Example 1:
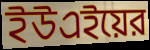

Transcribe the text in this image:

ইউএইয়ের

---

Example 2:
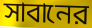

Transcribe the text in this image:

সাবানের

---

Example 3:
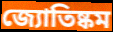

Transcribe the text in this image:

জ্যোতিষ্কম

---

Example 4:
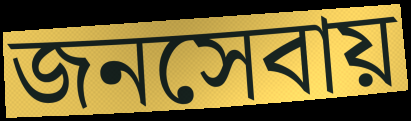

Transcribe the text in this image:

জনসেবায়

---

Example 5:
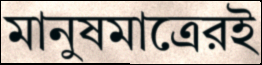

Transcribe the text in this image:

মানুষমাত্রেরই